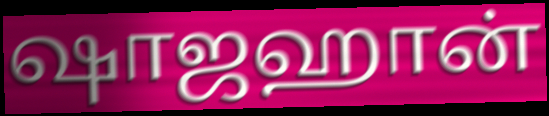
ஷாஜஹான்